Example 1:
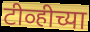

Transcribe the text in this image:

टीव्हीच्या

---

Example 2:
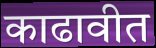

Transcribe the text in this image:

काढावीत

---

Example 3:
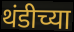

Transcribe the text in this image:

थंडीच्या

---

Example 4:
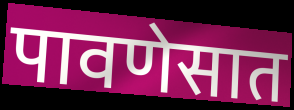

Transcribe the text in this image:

पावणेसात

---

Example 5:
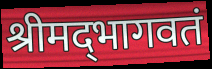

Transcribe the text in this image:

श्रीमद्‌भागवतं